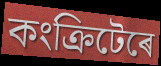
কংক্ৰিটেৰে